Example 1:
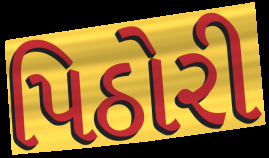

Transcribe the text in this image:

પિઠોરી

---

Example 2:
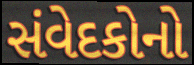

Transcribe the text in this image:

સંવેદકોનો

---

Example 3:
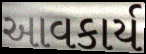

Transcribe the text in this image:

આવકાર્ય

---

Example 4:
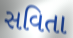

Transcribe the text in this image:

સવિતા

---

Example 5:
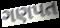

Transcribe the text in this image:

ગણપત